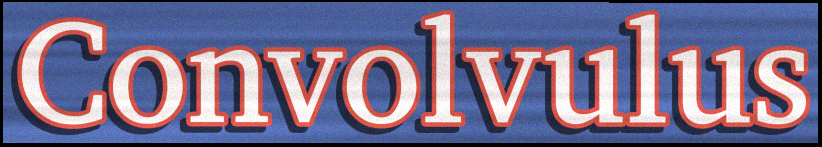
Convolvulus